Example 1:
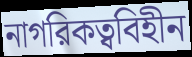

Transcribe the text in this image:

নাগরিকত্ববিহীন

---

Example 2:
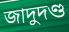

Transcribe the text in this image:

জাদুদণ্ড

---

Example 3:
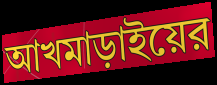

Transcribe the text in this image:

আখমাড়াইয়ের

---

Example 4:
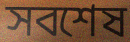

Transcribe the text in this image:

সবশেষ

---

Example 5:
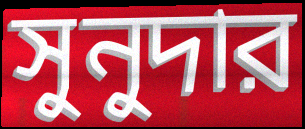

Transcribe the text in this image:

সুনুদার